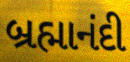
બ્રહ્માનંદી